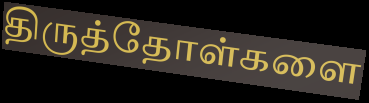
திருத்தோள்களை